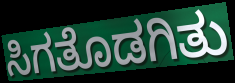
ಸಿಗತೊಡಗಿತು